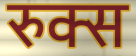
रुक्स